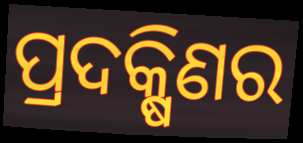
ପ୍ରଦକ୍ଷିଣର